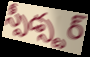
స్పీడ్స్టర్